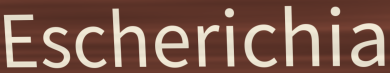
Escherichia